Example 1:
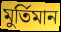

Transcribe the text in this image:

মুর্তিমান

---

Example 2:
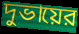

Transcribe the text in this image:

দুভায়ের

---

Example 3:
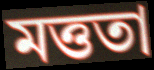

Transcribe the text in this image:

মত্ততা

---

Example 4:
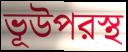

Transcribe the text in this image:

ভূউপরস্থ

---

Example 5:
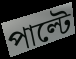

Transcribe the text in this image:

পাল্টে